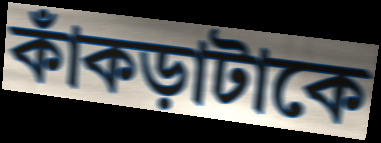
কাঁকড়াটাকে